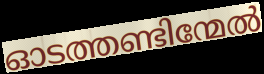
ഓടത്തണ്ടിന്മേൽ